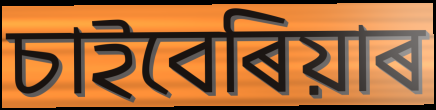
চাইবেৰিয়াৰ